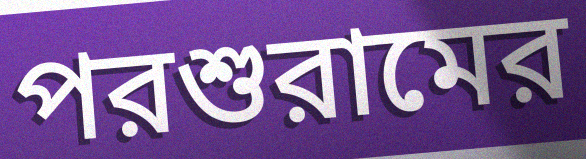
পরশুরামের